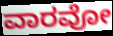
ವಾರವೋ